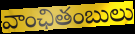
వాంఛితంబులు